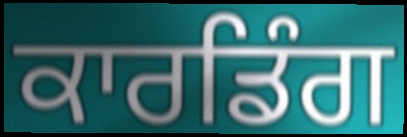
ਕਾਰਡਿੰਗ